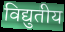
विद्युतीय